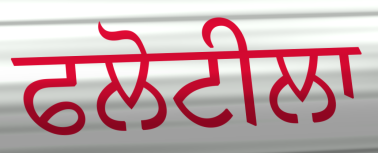
ਫਲੋਟੀਲਾ